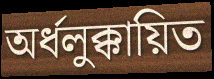
অর্ধলুক্কায়িত